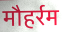
मौहर्रम